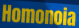
Homonoia